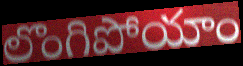
లొంగిపోయాం